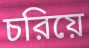
চরিয়ে